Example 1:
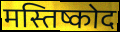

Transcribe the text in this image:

मस्तिष्कोद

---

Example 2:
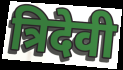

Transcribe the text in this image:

त्रिदेवी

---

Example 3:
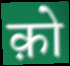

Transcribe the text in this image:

क़ो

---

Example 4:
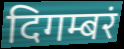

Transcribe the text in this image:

दिगम्बरं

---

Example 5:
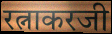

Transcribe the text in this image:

रत्नाकरजी